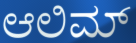
ಆಲಿಮ್